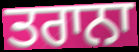
ਤਰਾਨਾ